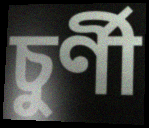
চুর্ণী